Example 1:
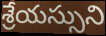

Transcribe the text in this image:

శ్రేయస్సుని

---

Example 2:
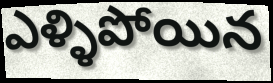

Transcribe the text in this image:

ఎళ్ళిపోయిన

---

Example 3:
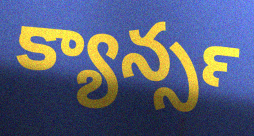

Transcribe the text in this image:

క్యాన్సర్‍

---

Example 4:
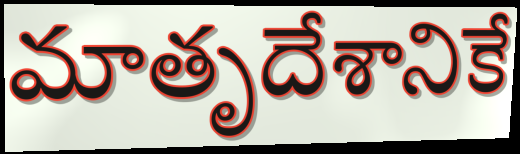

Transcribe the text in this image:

మాతృదేశానికే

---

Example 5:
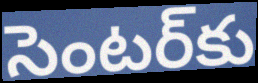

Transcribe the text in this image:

సెంటర్‌కు